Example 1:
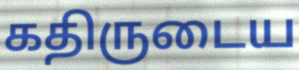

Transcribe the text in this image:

கதிருடைய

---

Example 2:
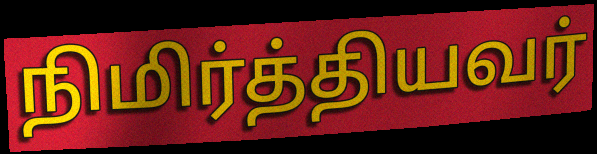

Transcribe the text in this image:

நிமிர்த்தியவர்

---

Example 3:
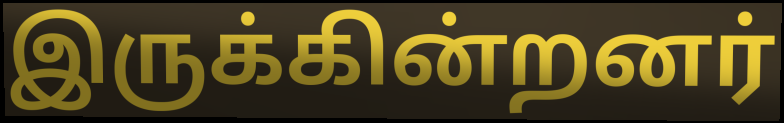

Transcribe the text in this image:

இருக்கின்றனர்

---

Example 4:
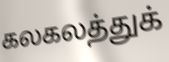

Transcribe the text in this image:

கலகலத்துக்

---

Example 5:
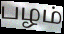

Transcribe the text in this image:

பழம்